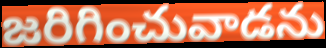
జరిగించువాడను